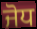
ਜੋਧ